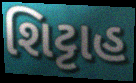
શિટ્ટાહ